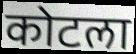
कोटला